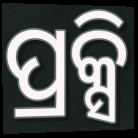
ପ୍ରକ୍ସି